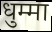
धुम्मा